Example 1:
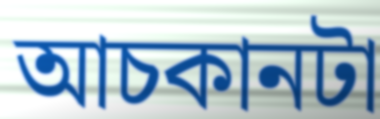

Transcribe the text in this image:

আচকানটা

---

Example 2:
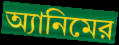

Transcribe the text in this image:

অ্যানিমের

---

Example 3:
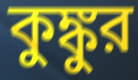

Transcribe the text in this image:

কুঙ্কুর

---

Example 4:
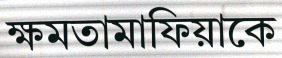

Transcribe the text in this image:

ক্ষমতামাফিয়াকে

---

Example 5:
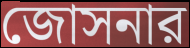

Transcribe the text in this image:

জোসনার